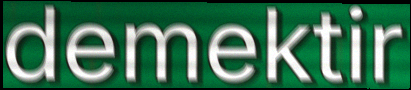
demektir